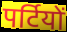
पर्टियों